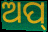
ଅପ୍